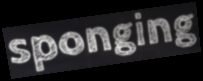
sponging